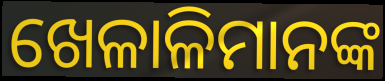
ଖେଳାଳିମାନଙ୍କ